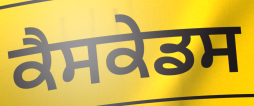
ਕੈਸਕੇਡਸ